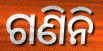
ଗଣିନି